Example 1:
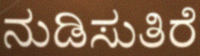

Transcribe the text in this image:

ನುಡಿಸುತಿರೆ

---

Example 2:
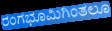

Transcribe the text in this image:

ರಂಗಭೂಮಿಗಿಂತಲೂ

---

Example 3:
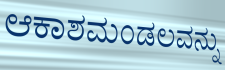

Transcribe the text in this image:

ಆಕಾಶಮಂಡಲವನ್ನು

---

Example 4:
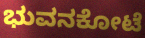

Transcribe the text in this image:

ಭುವನಕೋಟೆ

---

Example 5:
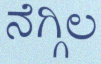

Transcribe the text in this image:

ನೆಗ್ಗಿಲ